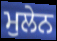
ਮੁਲੇਨ